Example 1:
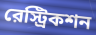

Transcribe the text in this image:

রেস্ট্রিকশন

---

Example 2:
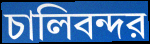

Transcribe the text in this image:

চালিবন্দর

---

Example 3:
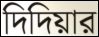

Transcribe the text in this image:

দিদিয়ার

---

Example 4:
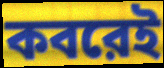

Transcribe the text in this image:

কবরেই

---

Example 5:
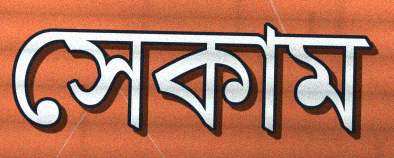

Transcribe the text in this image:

সেকাম